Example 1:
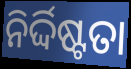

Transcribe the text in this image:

ନିର୍ଦ୍ଦିଷ୍ଟତା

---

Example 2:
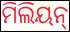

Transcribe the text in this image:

ମିଲିୟନ୍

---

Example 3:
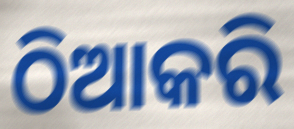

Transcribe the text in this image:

ଠିଆକରି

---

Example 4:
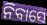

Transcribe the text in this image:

ନିବାସେ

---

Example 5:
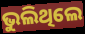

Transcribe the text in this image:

ଭୁଲିଥିଲେ